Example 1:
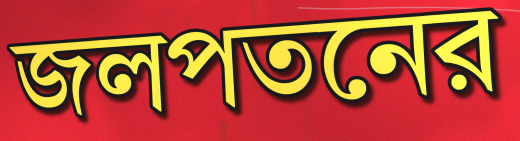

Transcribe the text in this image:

জলপতনের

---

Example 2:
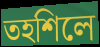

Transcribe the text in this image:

তহশিলে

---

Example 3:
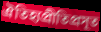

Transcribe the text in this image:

ঐতিহ্যপ্রীতিপ্রসূত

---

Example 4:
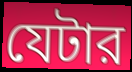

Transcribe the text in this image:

যেটার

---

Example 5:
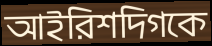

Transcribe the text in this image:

আইরিশদিগকে